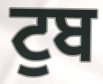
ਟੁਬ